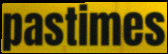
pastimes